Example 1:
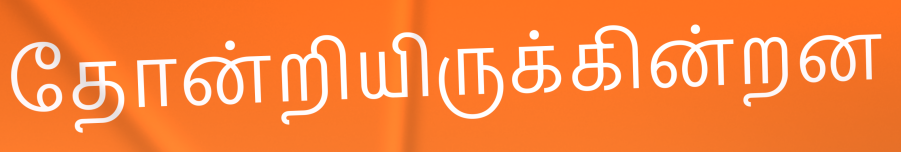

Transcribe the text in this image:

தோன்றியிருக்கின்றன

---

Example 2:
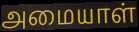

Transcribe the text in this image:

அமையாள்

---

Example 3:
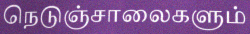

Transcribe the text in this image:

நெடுஞ்சாலைகளும்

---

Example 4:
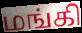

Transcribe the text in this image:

மங்கி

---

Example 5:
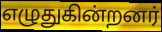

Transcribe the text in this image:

எழுதுகின்றனர்